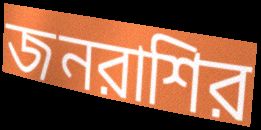
জনরাশির